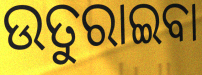
ଉତୁରାଇବା